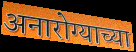
अनारोग्याच्या